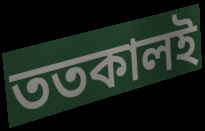
ততকালই